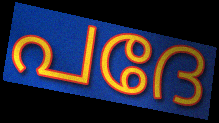
പദേ